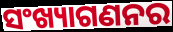
ସଂଖ୍ୟାଗଣନର